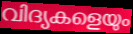
വിദ്യകളെയും